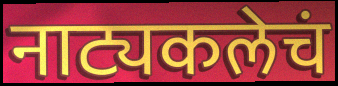
नाट्यकलेचं